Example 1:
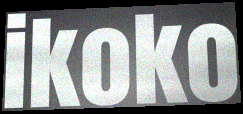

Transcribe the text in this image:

ikoko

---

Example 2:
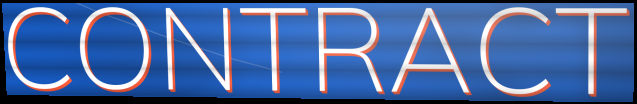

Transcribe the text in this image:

CONTRACT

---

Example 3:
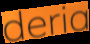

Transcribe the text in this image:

deria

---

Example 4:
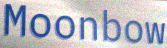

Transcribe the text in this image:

Moonbow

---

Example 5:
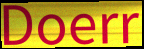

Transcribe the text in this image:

Doerr